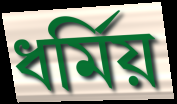
ধর্মিয়